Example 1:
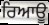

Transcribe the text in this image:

ਰਿਆਊ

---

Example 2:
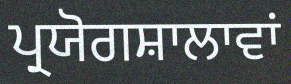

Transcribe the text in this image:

ਪ੍ਰਯੋਗਸ਼ਾਲਾਵਾਂ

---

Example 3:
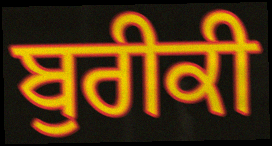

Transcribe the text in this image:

ਬੁਰੀਕੀ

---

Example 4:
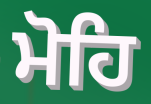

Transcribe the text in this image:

ਮੋਹਿ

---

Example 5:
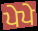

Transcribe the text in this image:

ਪੇਪੇ